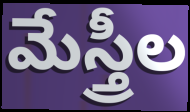
మేస్త్రీల